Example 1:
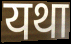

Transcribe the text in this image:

यथा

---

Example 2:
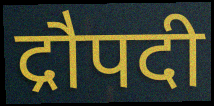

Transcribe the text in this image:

द्रौपदी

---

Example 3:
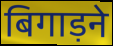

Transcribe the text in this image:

बिगाड़ने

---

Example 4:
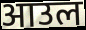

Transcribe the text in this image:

आउल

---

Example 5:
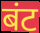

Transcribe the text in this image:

बंट